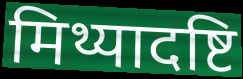
मिथ्यादष्टि